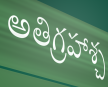
అతిగ్రహాశ్చ